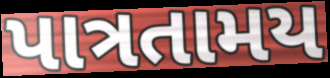
પાત્રતામય